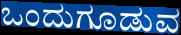
ಒಂದುಗೂಡುವ